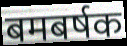
बमबर्षक